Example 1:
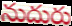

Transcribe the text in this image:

నుదురు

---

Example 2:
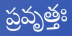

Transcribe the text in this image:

ప్రవృత్తః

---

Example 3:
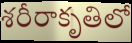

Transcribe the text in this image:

శరీరాకృతిలో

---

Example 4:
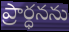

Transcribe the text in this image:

ప్రార్ధనను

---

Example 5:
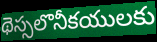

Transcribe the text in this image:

థెస్సలొనీకయులకు